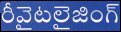
రీవైటలైజింగ్